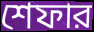
শেফার